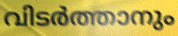
വിടർത്താനും